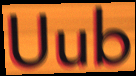
Uub